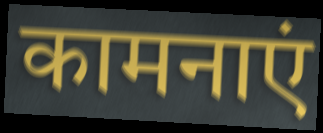
कामनाएं